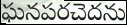
ఘనపరచెదను